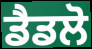
ਡੈਡਲੋ